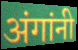
अंगांनी